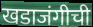
खडाजंगीची